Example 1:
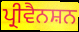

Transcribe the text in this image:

ਪ੍ਰੀਵੈਨਸ਼ਨ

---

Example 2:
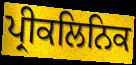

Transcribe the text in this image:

ਪ੍ਰੀਕਲਿਨਿਕ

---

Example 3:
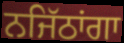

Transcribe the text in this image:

ਨਜਿੱਠਾਂਗਾ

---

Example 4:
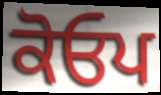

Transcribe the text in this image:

ਕੋਓਪ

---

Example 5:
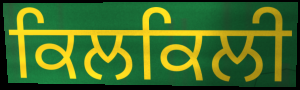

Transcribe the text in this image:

ਕਿਲਕਿਲੀ